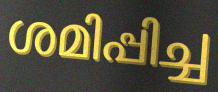
ശമിപ്പിച്ച